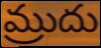
మ్రుదు